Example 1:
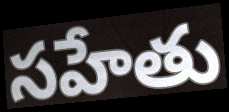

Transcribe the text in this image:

సహేతు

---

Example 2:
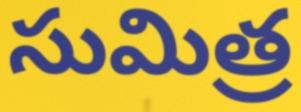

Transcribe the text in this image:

సుమిత్ర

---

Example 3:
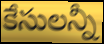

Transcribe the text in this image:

కేసులన్నీ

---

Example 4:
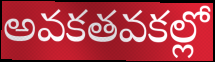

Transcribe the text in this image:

అవకతవకల్లో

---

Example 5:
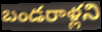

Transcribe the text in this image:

బండరాళ్లని